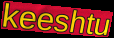
keeshtu